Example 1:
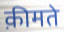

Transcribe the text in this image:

क़ीमते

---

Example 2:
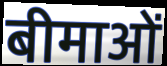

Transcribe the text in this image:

बीमाओं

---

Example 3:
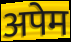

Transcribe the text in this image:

अपेम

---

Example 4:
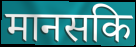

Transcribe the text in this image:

मानसकि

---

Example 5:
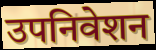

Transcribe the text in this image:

उपनिवेशन